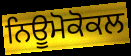
ਨਿਊਮੋਕੋਕਲ